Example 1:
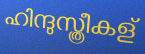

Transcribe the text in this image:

ഹിന്ദുസ്ത്രീകള്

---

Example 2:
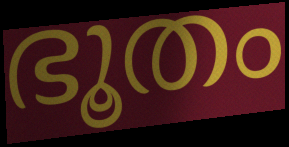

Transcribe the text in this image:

ഭൂതം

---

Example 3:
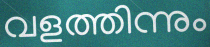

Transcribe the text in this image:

വളത്തിന്നും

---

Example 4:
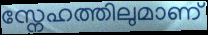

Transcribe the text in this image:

സ്നേഹത്തിലുമാണ്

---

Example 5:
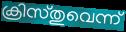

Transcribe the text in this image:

ക്രിസ്തുവെന്ന്